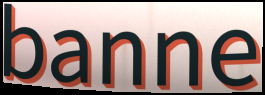
banne